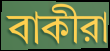
বাকীরা